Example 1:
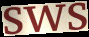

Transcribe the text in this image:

sws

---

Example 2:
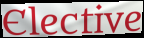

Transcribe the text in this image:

Elective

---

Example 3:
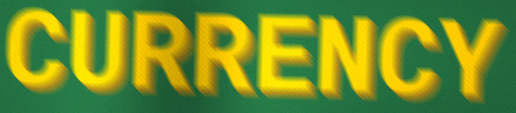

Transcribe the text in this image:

CURRENCY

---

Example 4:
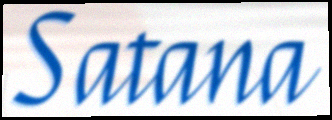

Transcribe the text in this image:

Satana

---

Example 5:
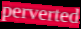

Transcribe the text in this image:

perverted